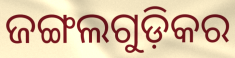
ଜଙ୍ଗଲଗୁଡ଼ିକର